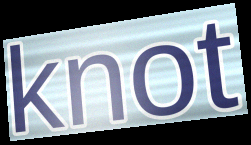
knot